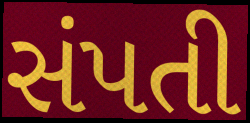
સંપતી